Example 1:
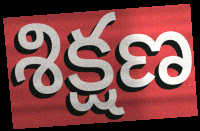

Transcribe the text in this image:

శిక్షణ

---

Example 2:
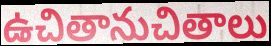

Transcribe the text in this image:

ఉచితానుచితాలు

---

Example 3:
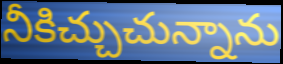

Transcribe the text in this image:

నీకిచ్చుచున్నాను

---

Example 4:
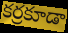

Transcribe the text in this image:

కర్రకూడా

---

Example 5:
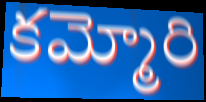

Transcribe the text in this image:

కమ్మోరి